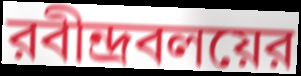
রবীন্দ্রবলয়ের